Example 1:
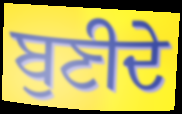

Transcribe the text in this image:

ਬੁਣੀਦੇ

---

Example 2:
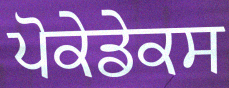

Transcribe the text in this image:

ਪੋਕੇਡੇਕਸ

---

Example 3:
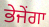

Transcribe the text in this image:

ਭੇਜੇਂਗਾ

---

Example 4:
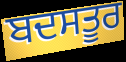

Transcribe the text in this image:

ਬਦਸਤੂਰ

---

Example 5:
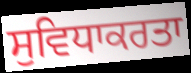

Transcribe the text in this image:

ਸੁਵਿਧਾਕਰਤਾ